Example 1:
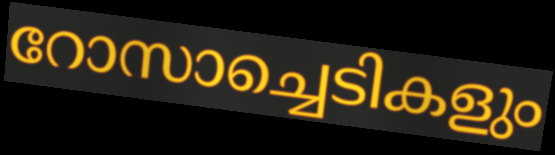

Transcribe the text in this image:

റോസാച്ചെടികളും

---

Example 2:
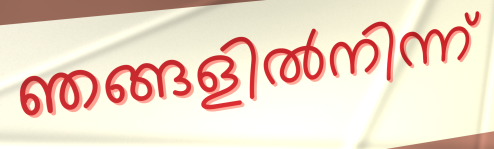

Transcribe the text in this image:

ഞങ്ങളിൽനിന്ന്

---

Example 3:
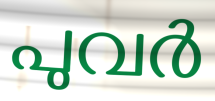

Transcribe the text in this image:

പുവർ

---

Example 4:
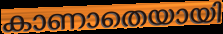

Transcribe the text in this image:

കാണാതെയായി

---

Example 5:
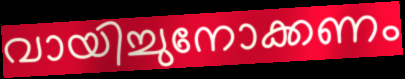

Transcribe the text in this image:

വായിച്ചുനോക്കണം